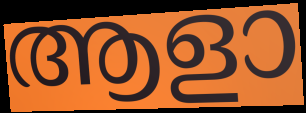
ആളാ